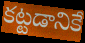
కట్టడానికే